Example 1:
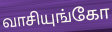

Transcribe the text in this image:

வாசியுங்கோ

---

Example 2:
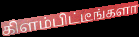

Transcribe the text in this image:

கிளம்பிட்டீங்களா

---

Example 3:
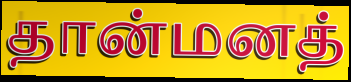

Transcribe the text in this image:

தான்மனத்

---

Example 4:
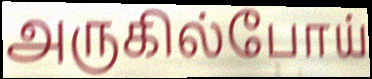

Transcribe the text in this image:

அருகில்போய்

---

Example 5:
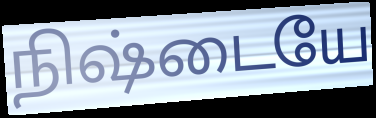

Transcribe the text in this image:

நிஷ்டையே